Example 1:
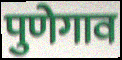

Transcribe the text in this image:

पुणेगाव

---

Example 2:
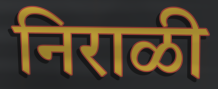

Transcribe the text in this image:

निराळी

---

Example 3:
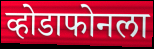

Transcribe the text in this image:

व्होडाफोनला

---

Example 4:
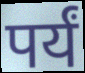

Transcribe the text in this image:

पर्यं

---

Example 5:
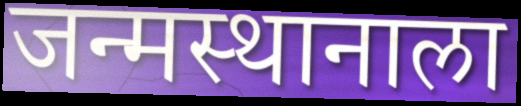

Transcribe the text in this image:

जन्मस्थानाला